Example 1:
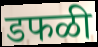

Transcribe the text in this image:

डफळी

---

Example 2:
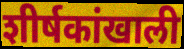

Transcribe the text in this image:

शीर्षकांखाली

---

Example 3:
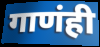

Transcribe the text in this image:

गाणंही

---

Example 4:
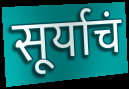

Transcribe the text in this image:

सूर्याचं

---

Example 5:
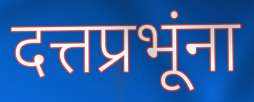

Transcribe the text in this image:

दत्तप्रभूंना